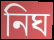
নিঘ